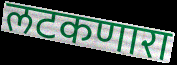
लटकणारा